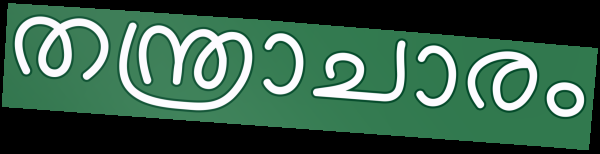
തന്ത്രാചാരം